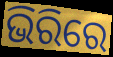
ଭିରିରେ